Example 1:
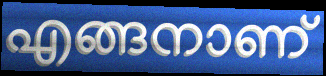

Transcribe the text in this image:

എങ്ങനാണ്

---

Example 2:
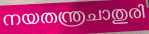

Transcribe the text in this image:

നയതന്ത്രചാതുരി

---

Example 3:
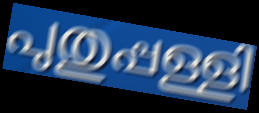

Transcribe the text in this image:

പുതുപ്പള്ളി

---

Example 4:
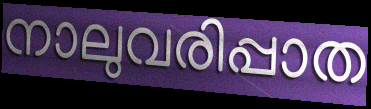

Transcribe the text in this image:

നാലുവരിപ്പാത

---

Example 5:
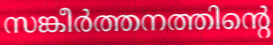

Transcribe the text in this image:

സങ്കീർത്തനത്തിന്റെ